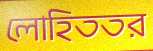
লোহিততর